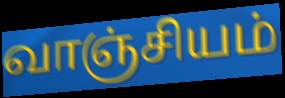
வாஞ்சியம்